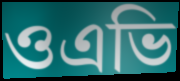
ওএভি